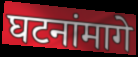
घटनांमागे